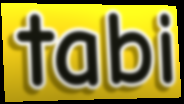
tabi